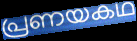
പ്രണയകഥ